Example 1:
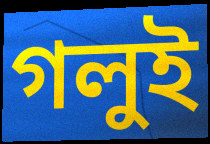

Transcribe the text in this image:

গলুই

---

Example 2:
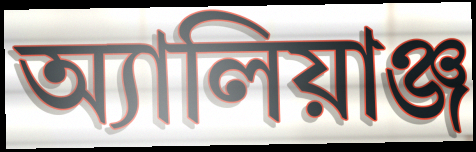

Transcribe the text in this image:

অ্যালিয়াঞ্জ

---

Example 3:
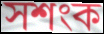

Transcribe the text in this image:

সশংক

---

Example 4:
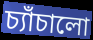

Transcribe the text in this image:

চ্যাঁচালো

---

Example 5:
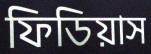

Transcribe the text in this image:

ফিডিয়াস